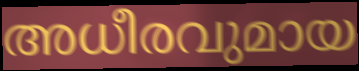
അധീരവുമായ